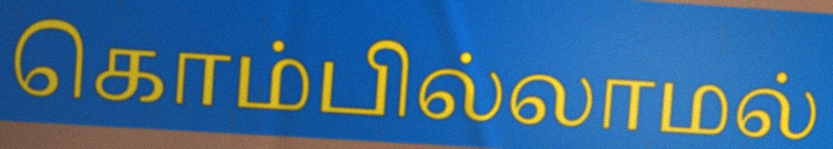
கொம்பில்லாமல்